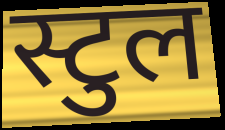
स्टुल